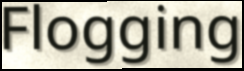
Flogging